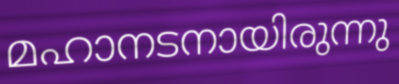
മഹാനടനായിരുന്നു